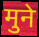
मुने